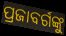
ପ୍ରଜାବର୍ଗଙ୍କୁ